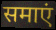
समाएं